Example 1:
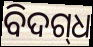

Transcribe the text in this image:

ବିଦଗ୍‍ଧ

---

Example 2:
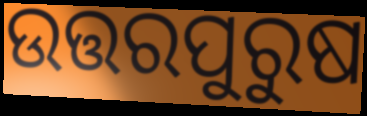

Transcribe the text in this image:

ଉତ୍ତରପୁରୁଷ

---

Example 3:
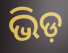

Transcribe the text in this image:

ଭିଡ଼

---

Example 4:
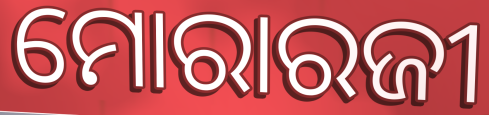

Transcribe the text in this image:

ମୋରାରଜୀ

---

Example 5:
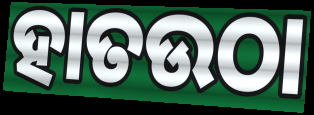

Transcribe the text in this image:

ହାତଉଠା